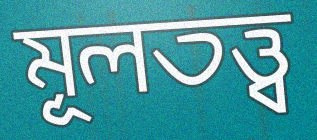
মূলতত্ত্ব